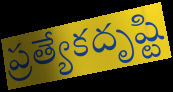
ప్రత్యేకదృష్టి